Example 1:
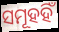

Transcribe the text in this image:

ସମୂହହିଁ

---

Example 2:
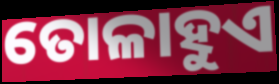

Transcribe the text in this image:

ତୋଳାହୁଏ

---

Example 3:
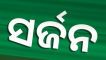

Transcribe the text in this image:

ସର୍ଜନ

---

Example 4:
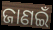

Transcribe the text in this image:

ଜାଣଇଁ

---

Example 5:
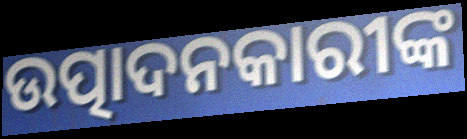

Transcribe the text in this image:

ଉତ୍ପାଦନକାରୀଙ୍କ